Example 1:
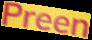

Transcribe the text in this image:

Preen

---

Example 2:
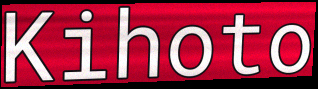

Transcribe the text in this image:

Kihoto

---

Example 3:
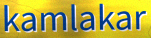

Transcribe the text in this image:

kamlakar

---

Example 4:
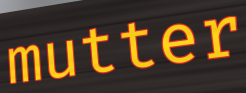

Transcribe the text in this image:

mutter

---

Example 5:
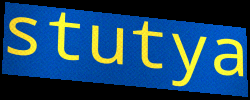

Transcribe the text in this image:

stutya